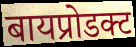
बायप्रोडक्ट